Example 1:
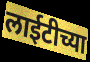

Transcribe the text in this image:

लाईटीच्या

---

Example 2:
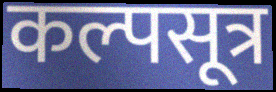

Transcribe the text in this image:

कल्पसूत्र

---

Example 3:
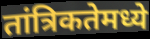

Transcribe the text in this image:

तांत्रिकतेमध्ये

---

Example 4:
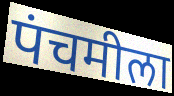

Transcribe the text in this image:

पंचमीला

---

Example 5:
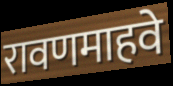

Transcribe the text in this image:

रावणमाहवे